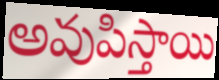
అవుపిస్తాయి